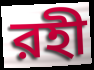
রহী